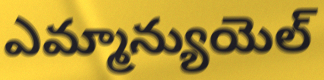
ఎమ్మాన్యుయెల్